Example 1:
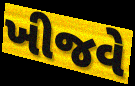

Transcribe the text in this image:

ખીજવે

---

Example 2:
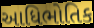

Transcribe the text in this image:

આધિભોતિક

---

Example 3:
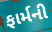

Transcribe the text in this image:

ફાર્મની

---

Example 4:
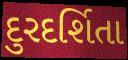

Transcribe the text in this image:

દુરદર્શિતા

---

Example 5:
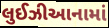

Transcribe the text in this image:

લુઈઝીઆનામાં